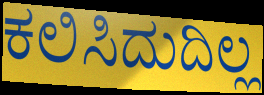
ಕಲಿಸಿದುದಿಲ್ಲ